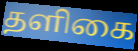
தளிகை